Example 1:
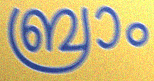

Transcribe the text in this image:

ബ്രാം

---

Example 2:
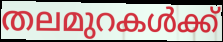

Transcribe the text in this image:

തലമുറകൾക്ക്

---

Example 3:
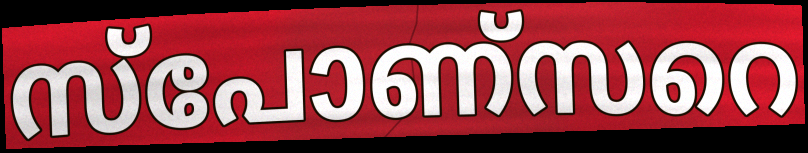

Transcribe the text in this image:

സ്പോണ്സറെ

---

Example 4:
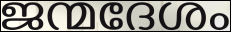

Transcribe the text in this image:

ജന്മദേശം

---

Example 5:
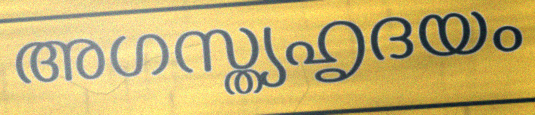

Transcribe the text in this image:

അഗസ്ത്യഹൃദയം